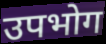
उपभोग